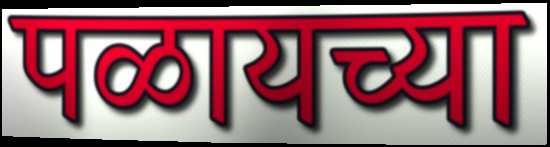
पळायच्या